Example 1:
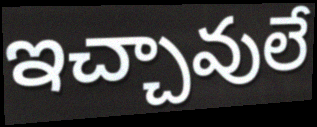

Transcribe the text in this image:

ఇచ్చావులే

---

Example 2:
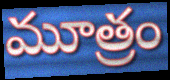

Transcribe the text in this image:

మూత్రం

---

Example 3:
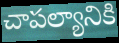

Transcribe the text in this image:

చాపల్యానికి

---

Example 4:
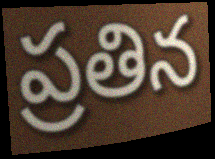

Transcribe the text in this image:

ప్రతిన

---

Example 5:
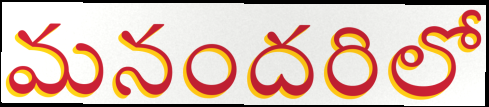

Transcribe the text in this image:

మనందరిలో